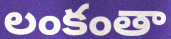
లంకంతా